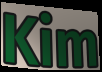
Kim